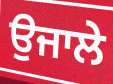
ਉਜਾਲੇ